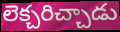
లెక్చరిచ్చాడు